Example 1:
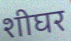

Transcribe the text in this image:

शीघर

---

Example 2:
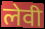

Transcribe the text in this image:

लेवी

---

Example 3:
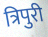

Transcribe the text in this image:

त्रिपुरी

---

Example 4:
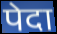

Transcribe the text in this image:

पेदा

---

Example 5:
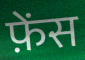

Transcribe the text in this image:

फ़ेंस